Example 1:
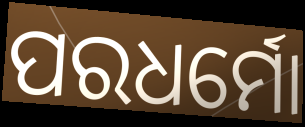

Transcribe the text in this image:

ପରଧର୍ମୋ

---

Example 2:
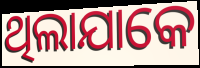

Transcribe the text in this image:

ଥିଲାଯାକେ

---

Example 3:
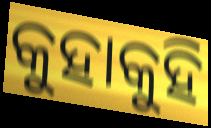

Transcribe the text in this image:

କୁହାକୁହି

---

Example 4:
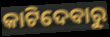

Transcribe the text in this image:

କାଟିଦେବାରୁ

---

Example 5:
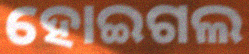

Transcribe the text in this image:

ହୋଇଗଲ